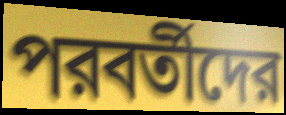
পরবর্তীদের